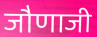
जौणाजी